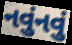
નવુંનવું